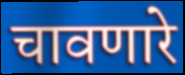
चावणारे